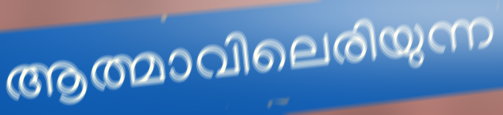
ആത്മാവിലെരിയുന്ന